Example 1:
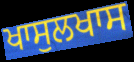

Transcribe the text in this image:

ਖਾਸੁਲਖਾਸ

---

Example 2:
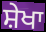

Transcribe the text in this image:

ਸ਼ੇਖਾ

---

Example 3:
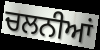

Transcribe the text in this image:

ਚਲਨੀਆਂ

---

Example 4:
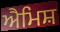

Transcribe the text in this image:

ਐਮਿਸ਼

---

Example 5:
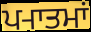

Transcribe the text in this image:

ਪ੍ਮਾਤਮਾਂ